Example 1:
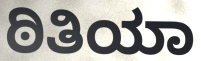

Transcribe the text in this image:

ಠಿತಿಯಾ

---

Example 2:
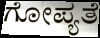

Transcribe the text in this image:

ಗೋಪ್ಯತೆ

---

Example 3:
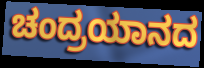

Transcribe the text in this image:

ಚಂದ್ರಯಾನದ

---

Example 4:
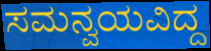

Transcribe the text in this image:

ಸಮನ್ವಯವಿದ್ದ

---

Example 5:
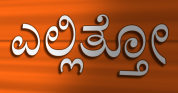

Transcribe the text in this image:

ಎಲ್ಲಿತ್ತೋ